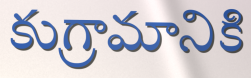
కుగ్రామానికి